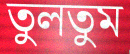
তুলতুম